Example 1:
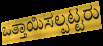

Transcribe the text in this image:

ಒತ್ತಾಯಿಸಲ್ಪಟ್ಟರು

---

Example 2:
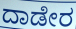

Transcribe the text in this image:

ದಾಡೇರ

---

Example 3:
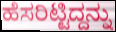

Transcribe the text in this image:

ಹೆಸರಿಟ್ಟಿದ್ದನ್ನು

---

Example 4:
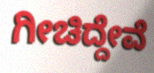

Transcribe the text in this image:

ಗೀಚಿದ್ದೇವೆ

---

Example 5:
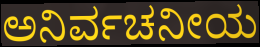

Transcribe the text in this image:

ಅನಿರ್ವಚನೀಯ